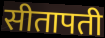
सीतापती